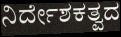
ನಿರ್ದೇಶಕತ್ವದ